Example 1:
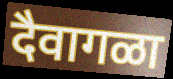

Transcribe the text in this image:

दैवागळा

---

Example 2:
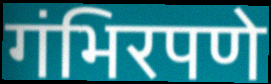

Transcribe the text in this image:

गंभिरपणे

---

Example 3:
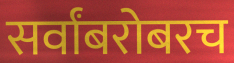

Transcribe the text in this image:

सर्वांबरोबरच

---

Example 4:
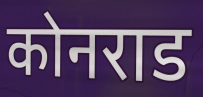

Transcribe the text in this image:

कोनराड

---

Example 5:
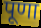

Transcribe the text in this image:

पूणा